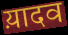
य़ादव